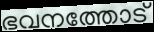
ഭവനത്തോട്